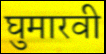
घुमारवी